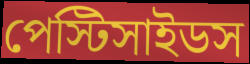
পেস্টিসাইডস